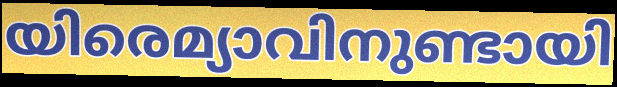
യിരെമ്യാവിനുണ്ടായി